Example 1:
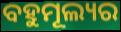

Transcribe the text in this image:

ବହୁମୂଲ୍ୟର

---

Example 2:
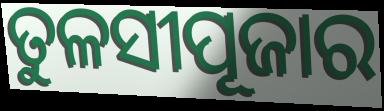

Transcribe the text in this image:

ତୁଳସୀପୂଜାର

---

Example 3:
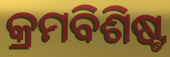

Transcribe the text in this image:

କ୍ରମବିଶିଷ୍ଟ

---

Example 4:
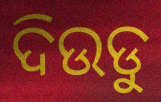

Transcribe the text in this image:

ଦିଉଡୁ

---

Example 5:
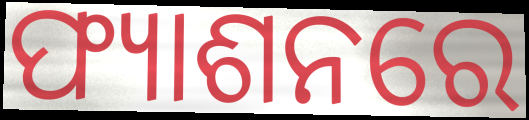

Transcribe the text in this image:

ଫ୍ୟାଶନରେ